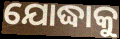
ଯୋଦ୍ଧାକୁ